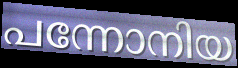
പന്നോനിയ